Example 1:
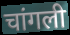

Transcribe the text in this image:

चांगली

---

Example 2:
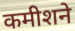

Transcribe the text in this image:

कमीशने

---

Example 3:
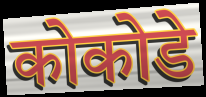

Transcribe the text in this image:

कोकोडे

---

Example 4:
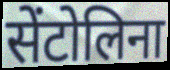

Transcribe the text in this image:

सेंटोलिना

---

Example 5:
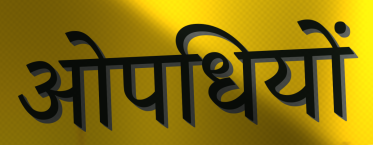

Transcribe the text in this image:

ओपधियों